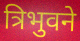
त्रिभुवने